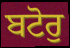
ਬਟੋਰੁ